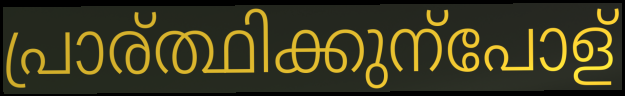
പ്രാര്ത്ഥിക്കുന്പോള്